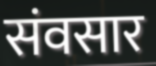
संवसार